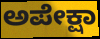
ಅಪೇಕ್ಷಾ